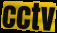
cctv